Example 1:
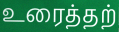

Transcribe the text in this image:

உரைத்தற்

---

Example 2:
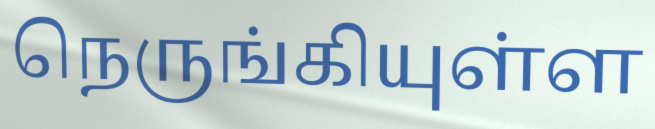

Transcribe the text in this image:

நெருங்கியுள்ள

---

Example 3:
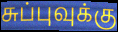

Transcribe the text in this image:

சுப்புவுக்கு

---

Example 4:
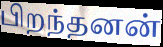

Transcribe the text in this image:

பிறந்தனன்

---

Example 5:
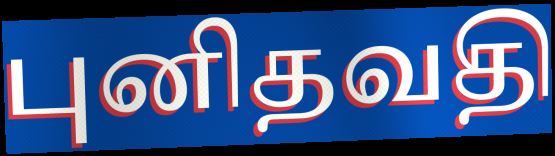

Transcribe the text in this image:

புனிதவதி